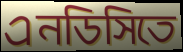
এনডিসিতে